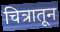
चित्रातून